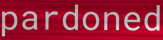
pardoned